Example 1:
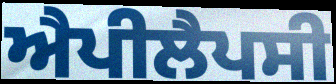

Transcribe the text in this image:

ਐਪੀਲੈਪਸੀ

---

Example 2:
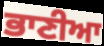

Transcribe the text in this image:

ਭਾਣੀਆ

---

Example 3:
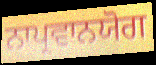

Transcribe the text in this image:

ਨਾਪ੍ਰਵਾਨਯੋਗ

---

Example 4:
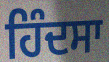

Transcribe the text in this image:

ਹਿੰਦਸਾ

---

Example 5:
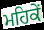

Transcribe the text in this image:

ਮਹਿਕੇਂ